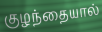
குழந்தையால்